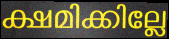
ക്ഷമിക്കില്ലേ